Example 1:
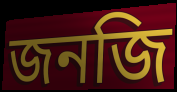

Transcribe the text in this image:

জনজি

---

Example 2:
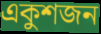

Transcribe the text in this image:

একুশজন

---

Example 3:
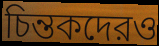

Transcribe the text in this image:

চিন্তকদেরও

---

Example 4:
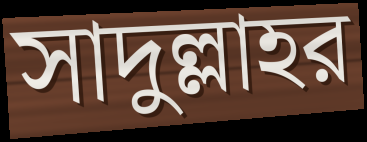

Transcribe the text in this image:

সাদুল্লাহর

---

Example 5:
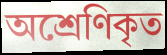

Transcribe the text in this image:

অশ্রেণিকৃত